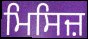
ਮਿਸਿਜ਼